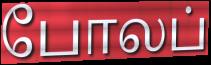
போலப்